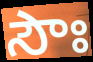
సౌః